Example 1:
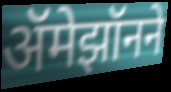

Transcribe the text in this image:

ॲमेझॉनने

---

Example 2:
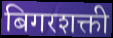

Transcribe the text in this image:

बिगरशक्ती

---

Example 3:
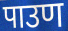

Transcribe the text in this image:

पाउण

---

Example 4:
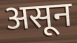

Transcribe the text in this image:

असून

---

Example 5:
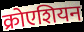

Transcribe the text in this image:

क्रोएशियन